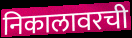
निकालावरची